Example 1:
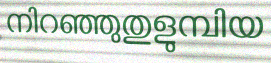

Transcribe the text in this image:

നിറഞ്ഞുതുളുമ്പിയ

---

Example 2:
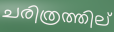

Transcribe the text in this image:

ചരിത്രത്തില്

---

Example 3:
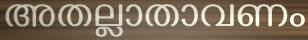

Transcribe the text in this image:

അതല്ലാതാവണം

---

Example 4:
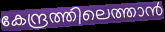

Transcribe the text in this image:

കേന്ദ്രത്തിലെത്താൻ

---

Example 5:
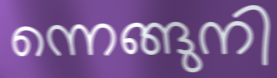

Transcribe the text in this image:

ന്നെങ്ങുനി